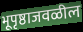
भूपृष्ठाजवळील